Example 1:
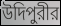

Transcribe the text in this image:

উদিপুরীর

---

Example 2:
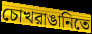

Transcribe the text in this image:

চোখরাঙানিতে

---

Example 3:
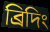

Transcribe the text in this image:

ব্রিদিং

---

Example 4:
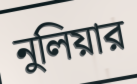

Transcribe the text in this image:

নুলিয়ার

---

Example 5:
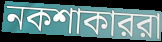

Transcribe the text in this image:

নকশাকাররা